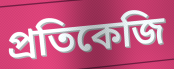
প্রতিকেজি